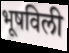
भूषविली